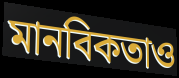
মানবিকতাও